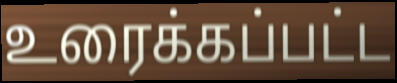
உரைக்கப்பட்ட